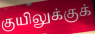
குயிலுக்குக்